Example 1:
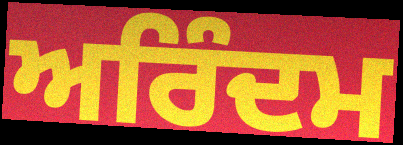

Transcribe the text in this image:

ਅਰਿੰਦਮ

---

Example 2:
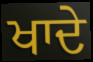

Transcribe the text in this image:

ਖਾਦੇ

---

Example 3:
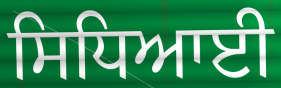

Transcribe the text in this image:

ਸਿਧਿਆਈ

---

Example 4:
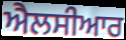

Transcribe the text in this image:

ਐਲਸੀਆਰ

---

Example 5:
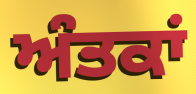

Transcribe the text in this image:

ਅੰਤਕਾਂ